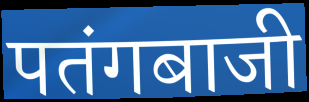
पतंगबाजी